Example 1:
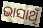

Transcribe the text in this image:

ଭାସାଥିଁ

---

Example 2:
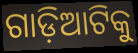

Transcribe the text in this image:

ଗାଡ଼ିଆଟିକୁ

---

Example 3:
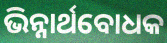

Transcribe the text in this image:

ଭିନ୍ନାର୍ଥବୋଧକ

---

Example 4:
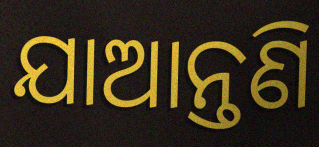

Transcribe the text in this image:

ଯାଆନ୍ତଣି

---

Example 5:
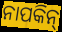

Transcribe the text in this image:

ନାପକିନ୍